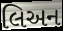
લિઅન